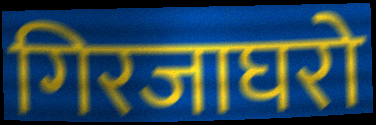
गिरजाघरो